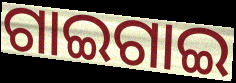
ଗାଇଗାଇ